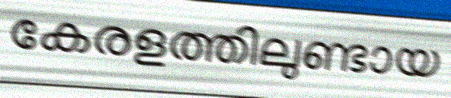
കേരളത്തിലുണ്ടായ